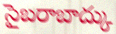
సైబరాబాద్కు